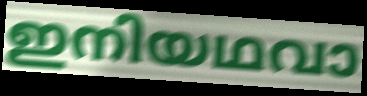
ഇനിയഥവാ